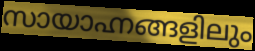
സായാഹ്നങ്ങളിലും